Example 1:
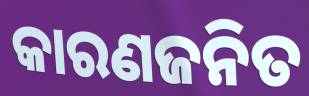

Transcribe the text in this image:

କାରଣଜନିତ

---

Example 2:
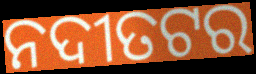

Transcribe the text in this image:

ନଦୀତଟର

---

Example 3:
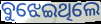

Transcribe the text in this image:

ବୁଝେଇଥିଲେ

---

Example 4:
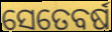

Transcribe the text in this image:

ସେତେବର୍ଷ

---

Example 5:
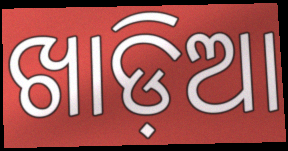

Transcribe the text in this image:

ଖାଡ଼ିଆ